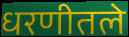
धरणीतले